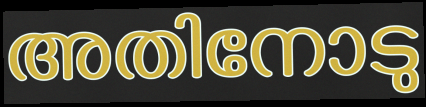
അതിനോടു